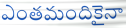
ఎంతమందికైనా